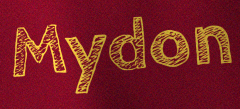
Mydon